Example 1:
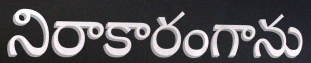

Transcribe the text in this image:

నిరాకారంగాను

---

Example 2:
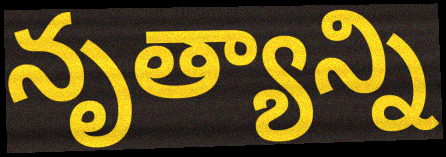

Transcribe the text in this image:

నృత్యాన్ని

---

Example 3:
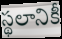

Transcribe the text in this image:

స్థలానికీ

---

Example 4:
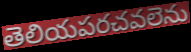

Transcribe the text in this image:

తెలియపరచవలెను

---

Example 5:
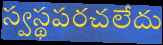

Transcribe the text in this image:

స్వస్థపరచలేదు